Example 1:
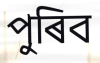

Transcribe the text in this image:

পুৰিব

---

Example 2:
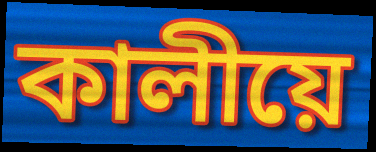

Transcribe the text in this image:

কালীয়ে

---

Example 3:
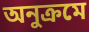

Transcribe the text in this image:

অনুক্ৰমে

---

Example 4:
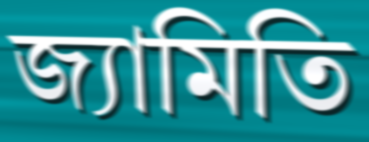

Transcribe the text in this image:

জ্যামিতি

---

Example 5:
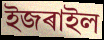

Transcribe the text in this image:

ইজৰাইল